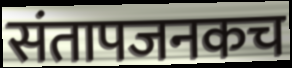
संतापजनकच